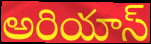
అరియాస్